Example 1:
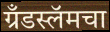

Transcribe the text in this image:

ग्रँडस्लॅमचा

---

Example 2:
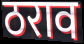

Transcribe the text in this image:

ठराव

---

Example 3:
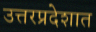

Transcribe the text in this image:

उत्तरप्रदेशात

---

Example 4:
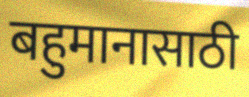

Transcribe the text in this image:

बहुमानासाठी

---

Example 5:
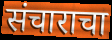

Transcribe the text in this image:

संचाराचा